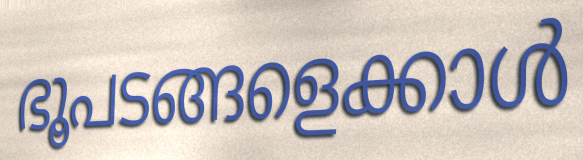
ഭൂപടങ്ങളെക്കാൾ